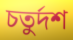
চতুৰ্দশ